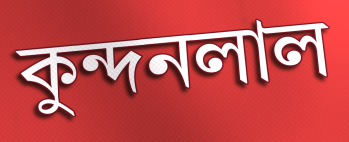
কুন্দনলাল